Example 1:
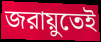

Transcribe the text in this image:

জরায়ুতেই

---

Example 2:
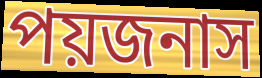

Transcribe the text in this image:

পয়জনাস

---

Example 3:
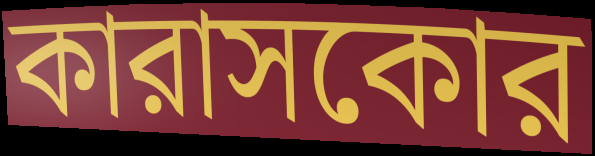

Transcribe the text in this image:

কারাসকোর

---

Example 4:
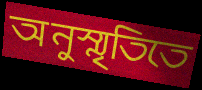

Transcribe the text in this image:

অনুস্মৃতিতে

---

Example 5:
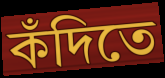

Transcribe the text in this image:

কঁদিতে